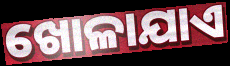
ଖୋଳାଯାଏ